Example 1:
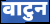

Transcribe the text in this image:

वाटुन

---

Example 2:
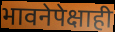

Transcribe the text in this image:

भावनेपेक्षाही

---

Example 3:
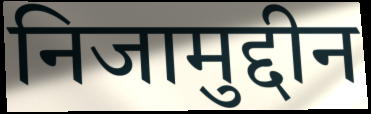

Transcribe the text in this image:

निजामुद्दीन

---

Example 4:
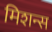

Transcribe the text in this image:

मिशन्स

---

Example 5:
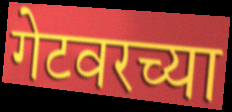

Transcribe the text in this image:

गेटवरच्या